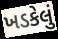
ખડકેલું